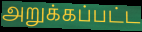
அறுக்கப்பட்ட